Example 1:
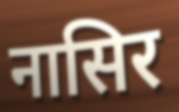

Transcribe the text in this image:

नासिर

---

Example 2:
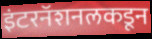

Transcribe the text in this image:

इंटरनॅशनलकडून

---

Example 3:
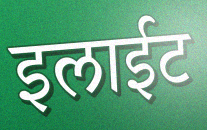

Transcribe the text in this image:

इलाईट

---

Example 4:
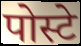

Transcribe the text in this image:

पोस्टे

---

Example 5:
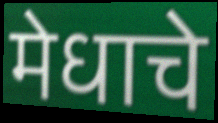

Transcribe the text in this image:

मेधाचे